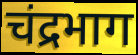
चंद्रभाग